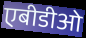
एबीडीओ